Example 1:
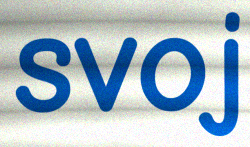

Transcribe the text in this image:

svoj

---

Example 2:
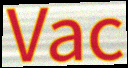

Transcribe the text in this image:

Vac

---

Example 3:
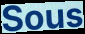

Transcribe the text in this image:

Sous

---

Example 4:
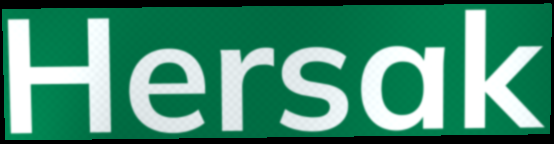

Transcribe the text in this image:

Hersak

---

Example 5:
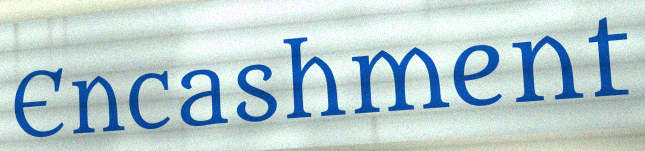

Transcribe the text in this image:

Encashment